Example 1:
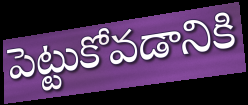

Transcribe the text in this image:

పెట్టుకోవడానికి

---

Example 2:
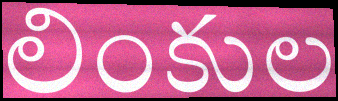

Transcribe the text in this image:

లింకుల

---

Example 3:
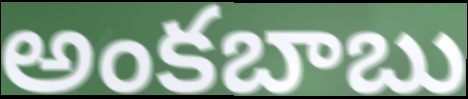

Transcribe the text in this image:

అంకబాబు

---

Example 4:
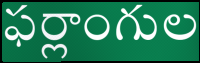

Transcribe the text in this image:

ఫర్లాంగుల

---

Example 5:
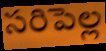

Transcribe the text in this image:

సరిపెల్ల